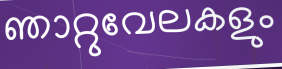
ഞാറ്റുവേലകളും